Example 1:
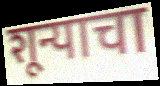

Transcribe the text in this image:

शून्याचा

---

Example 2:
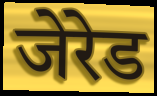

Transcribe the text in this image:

जेरेड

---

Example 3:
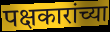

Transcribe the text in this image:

पक्षकारांच्या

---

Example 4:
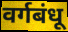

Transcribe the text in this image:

वर्गबंधू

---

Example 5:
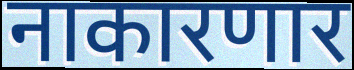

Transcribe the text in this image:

नाकारणार